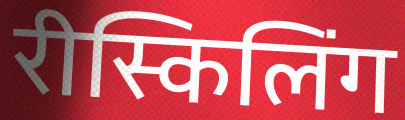
रीस्किलिंग